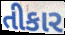
તીકાર